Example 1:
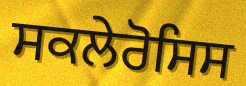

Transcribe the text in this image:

ਸਕਲੇਰੋਸਿਸ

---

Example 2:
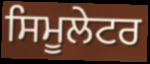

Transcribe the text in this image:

ਸਿਮੂਲੇਟਰ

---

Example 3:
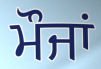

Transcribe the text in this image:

ਮੌਜਾਂ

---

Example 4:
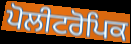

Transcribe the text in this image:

ਪੋਲੀਟਰੋਪਿਕ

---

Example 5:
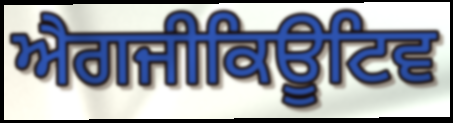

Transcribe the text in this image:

ਐਗਜੀਕਿਊਟਿਵ